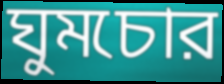
ঘুমচোর